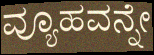
ವ್ಯೂಹವನ್ನೇ